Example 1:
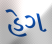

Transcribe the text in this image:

હેગ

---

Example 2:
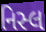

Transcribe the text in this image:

નિસ્લ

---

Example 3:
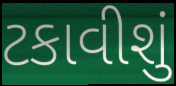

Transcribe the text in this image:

ટકાવીશું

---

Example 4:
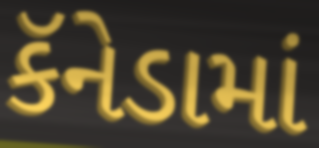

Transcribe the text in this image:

કૅનેડામાં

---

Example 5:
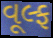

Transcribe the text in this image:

વૂલ્ફ